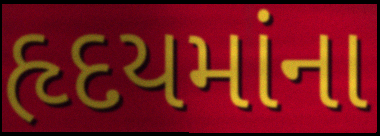
હૃદયમાંના